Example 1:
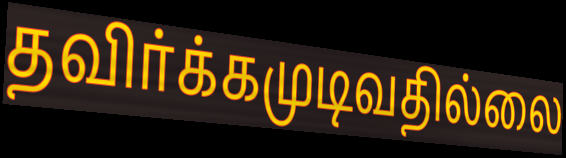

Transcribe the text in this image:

தவிர்க்கமுடிவதில்லை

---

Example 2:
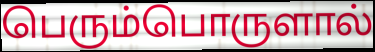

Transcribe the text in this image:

பெரும்பொருளால்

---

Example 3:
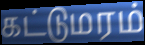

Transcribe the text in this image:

கட்டுமரம்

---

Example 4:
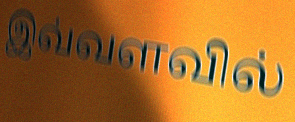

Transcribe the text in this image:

இவ்வளவில்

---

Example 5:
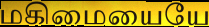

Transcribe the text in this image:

மகிமையையே